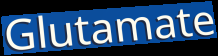
Glutamate